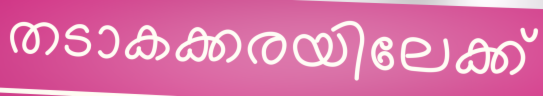
തടാകക്കരയിലേക്ക്